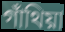
গাঁথিয়া